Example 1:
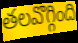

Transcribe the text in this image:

తలవొగ్గింది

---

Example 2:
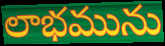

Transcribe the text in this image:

లాభమును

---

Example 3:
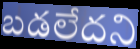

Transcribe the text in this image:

బడలేదని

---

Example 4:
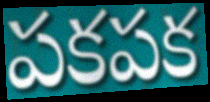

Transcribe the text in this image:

పకపక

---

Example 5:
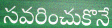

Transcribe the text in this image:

సవరించుకొనే